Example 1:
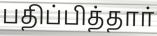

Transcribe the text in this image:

பதிப்பித்தார்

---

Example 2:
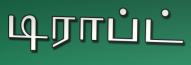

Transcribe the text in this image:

டிராப்ட்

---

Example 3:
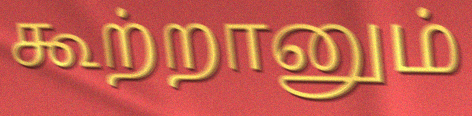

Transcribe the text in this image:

கூற்றானும்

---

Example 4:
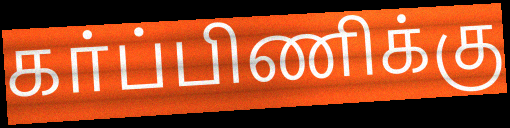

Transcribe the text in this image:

கர்ப்பிணிக்கு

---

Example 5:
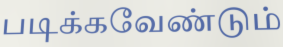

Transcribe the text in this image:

படிக்கவேண்டும்